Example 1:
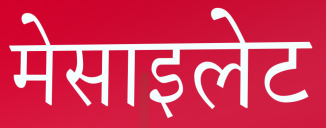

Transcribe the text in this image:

मेसाइलेट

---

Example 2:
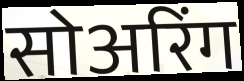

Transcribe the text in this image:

सोअरिंग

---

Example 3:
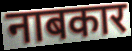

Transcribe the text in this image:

नाबकार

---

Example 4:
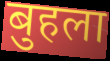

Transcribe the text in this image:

बुहला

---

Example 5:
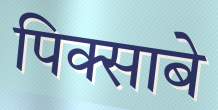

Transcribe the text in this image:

पिक्साबे